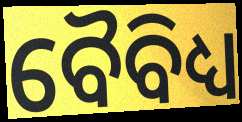
ବୈବିଧ୍ୟ